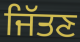
ਜਿੱਤਣ